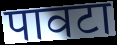
पावटा